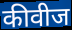
कीवीज